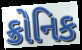
ક્રોનિક